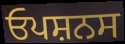
ਓਪਸ਼ਨਸ